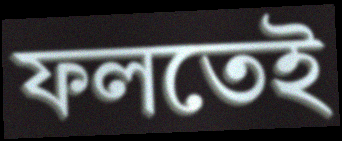
ফলতেই